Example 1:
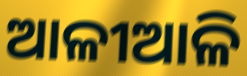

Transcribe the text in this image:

ଆଳୀଆଳି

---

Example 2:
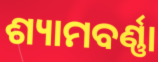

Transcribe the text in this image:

ଶ୍ୟାମବର୍ଣ୍ଣା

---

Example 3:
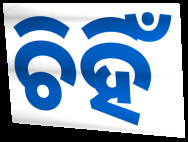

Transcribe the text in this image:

ଚିହିଁ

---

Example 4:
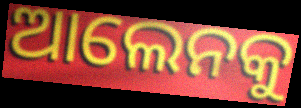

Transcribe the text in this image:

ଆଲେନକୁ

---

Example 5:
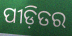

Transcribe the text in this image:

ପୀଡ଼ିତର